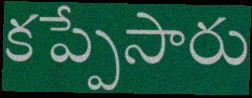
కప్పేసారు